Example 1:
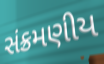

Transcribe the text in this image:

સંક્રમણીય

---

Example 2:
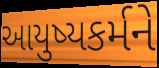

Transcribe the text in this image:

આયુષ્યકર્મને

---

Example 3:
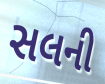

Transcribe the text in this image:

સલની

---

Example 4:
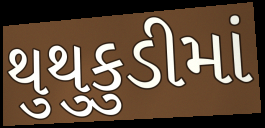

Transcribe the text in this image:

થુથુકુડીમાં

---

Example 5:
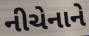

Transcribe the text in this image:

નીચેનાને